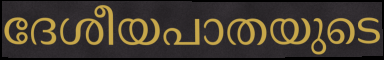
ദേശീയപാതയുടെ